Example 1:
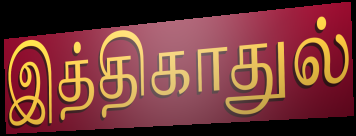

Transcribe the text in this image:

இத்திகாதுல்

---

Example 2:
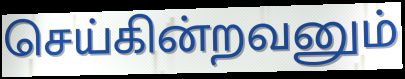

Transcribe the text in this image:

செய்கின்றவனும்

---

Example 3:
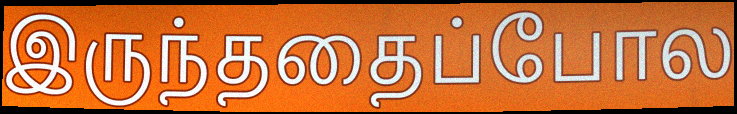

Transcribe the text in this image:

இருந்ததைப்போல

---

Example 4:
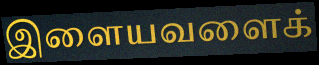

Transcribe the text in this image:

இளையவளைக்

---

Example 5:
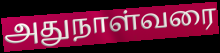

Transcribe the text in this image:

அதுநாள்வரை